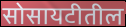
सोसायटीतील